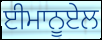
ਈਮਾਨੂਏਲ